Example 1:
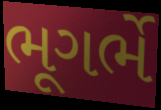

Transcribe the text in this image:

ભૂગર્ભે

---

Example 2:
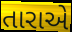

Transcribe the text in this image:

તારાએ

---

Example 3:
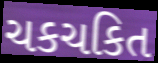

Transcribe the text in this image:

ચકચકિત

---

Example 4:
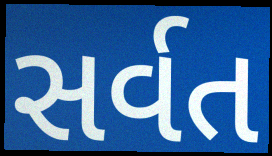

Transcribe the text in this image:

સર્વત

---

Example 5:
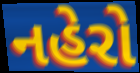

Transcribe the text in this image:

નહેરો